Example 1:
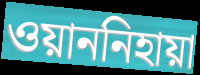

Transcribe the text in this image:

ওয়াননিহায়া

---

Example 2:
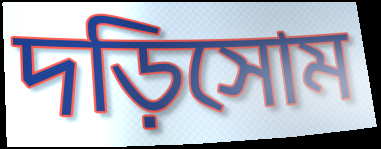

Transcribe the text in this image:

দড়িসোম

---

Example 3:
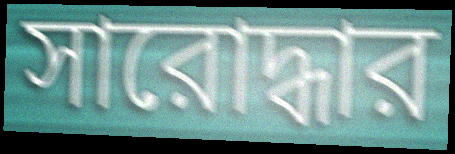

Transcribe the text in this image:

সারোদ্ধার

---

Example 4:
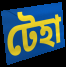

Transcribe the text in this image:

টেহা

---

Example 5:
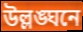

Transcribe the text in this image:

উল্লঙ্ঘনে